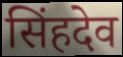
सिंहदेव